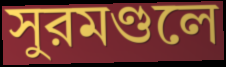
সুরমণ্ডলে